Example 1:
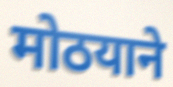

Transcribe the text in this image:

मोठयाने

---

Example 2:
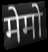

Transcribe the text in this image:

मेमो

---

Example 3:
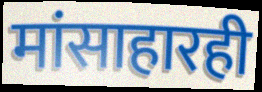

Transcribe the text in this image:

मांसाहारही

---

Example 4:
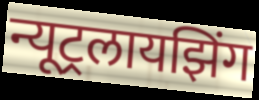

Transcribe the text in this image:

न्यूट्रलायझिंग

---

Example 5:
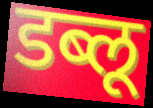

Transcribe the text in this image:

डब्लू